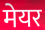
मेयर